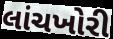
લાંચખોરી